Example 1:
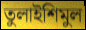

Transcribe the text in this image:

তুলাইশিমুল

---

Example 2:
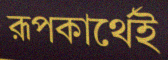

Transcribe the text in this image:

রূপকার্থেই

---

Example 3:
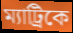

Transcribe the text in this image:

ম্যাট্রিকে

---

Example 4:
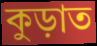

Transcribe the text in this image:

কুড়াত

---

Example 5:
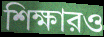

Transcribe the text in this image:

শিক্ষারও